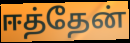
ஈத்தேன்